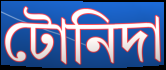
টোনিদা